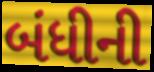
બંધીની